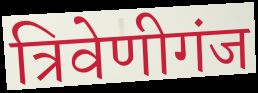
त्रिवेणीगंज